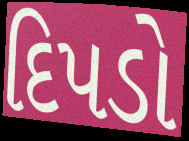
દિપડો